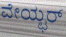
ವೇಯ್ಟರ್